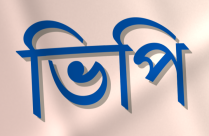
ভিপি